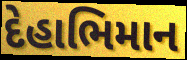
દેહાભિમાન